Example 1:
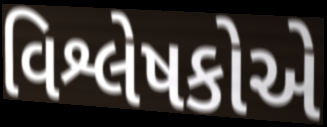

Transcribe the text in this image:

વિશ્લેષકોએ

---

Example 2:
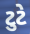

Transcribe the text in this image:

ટુટે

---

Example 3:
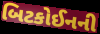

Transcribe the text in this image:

બિટકોઈનની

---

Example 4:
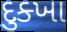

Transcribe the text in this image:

દુક્ખા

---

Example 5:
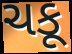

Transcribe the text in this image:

ચકૂ